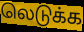
லெடுக்க